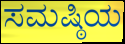
ಸಮಷ್ಠಿಯ